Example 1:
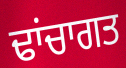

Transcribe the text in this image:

ਢਾਂਚਾਗਤ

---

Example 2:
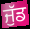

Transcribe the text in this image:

ਜੁੱਡ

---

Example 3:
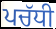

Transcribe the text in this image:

ਪਚੱਧੀ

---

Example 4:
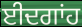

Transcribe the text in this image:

ਈਦਗਾਂਹ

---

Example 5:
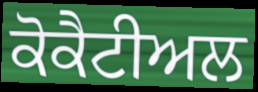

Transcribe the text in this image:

ਕੋਕੈਟੀਅਲ